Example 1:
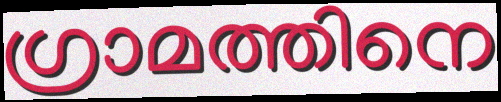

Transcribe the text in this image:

ഗ്രാമത്തിനെ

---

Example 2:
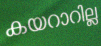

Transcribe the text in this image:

കയറാറില്ല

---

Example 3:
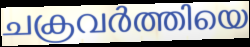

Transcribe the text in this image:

ചക്രവർത്തിയെ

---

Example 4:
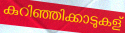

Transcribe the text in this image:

കുറിഞ്ഞിക്കാടുകള്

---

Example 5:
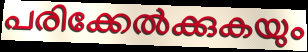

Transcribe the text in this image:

പരിക്കേൽക്കുകയും